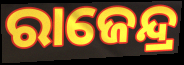
ରାଜେନ୍ଦ୍ର